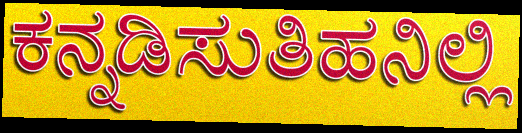
ಕನ್ನಡಿಸುತಿಹನಿಲ್ಲಿ